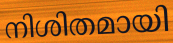
നിശിതമായി